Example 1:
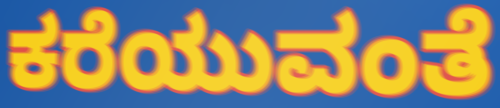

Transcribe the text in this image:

ಕರೆಯುವಂತೆ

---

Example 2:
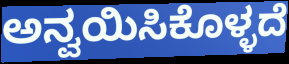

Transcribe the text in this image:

ಅನ್ವಯಿಸಿಕೊಳ್ಳದೆ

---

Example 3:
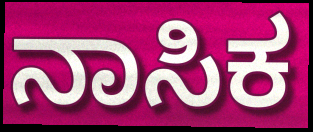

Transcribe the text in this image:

ನಾಸಿಕ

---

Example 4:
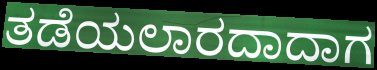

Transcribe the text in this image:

ತಡೆಯಲಾರದಾದಾಗ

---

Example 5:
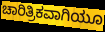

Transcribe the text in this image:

ಚಾರಿತ್ರಿಕವಾಗಿಯೂ